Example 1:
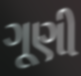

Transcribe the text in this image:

ગૂણી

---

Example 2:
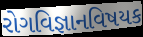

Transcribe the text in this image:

રોગવિજ્ઞાનવિષયક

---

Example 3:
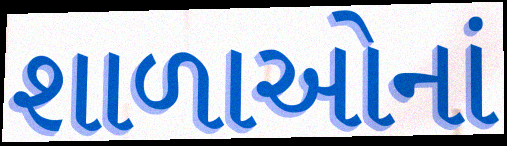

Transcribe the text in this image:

શાળાઓનાં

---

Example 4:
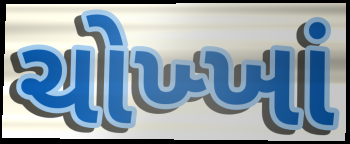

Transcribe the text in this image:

ચોખ્ખાં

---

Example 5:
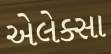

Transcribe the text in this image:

એલેક્સા